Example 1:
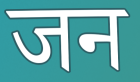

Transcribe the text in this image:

जन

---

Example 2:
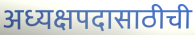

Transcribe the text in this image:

अध्यक्षपदासाठीची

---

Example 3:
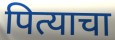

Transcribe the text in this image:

पित्याचा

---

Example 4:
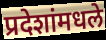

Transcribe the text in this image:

प्रदेशांमधले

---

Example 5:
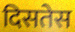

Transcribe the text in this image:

दिसतेस